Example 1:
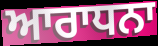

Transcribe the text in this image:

ਆਰਾਧਨਾ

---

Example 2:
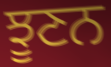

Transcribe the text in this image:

ਝੂਣਨ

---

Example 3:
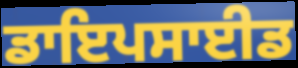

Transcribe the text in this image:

ਡਾਇਪਸਾਈਡ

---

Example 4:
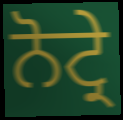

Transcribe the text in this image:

ਨੋਟ੍ਰੇ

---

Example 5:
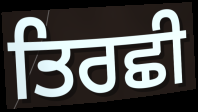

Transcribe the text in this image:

ਤਿਰਛੀ